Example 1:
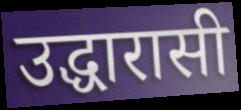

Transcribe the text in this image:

उद्धारासी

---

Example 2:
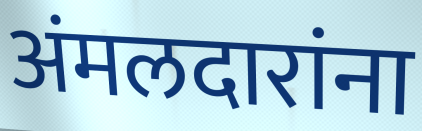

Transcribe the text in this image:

अंमलदारांना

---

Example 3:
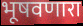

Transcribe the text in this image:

भूषवणारा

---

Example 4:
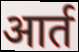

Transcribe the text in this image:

आर्त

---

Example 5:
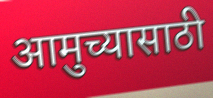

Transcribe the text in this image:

आमुच्यासाठी